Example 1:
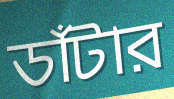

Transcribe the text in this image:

ডাঁটার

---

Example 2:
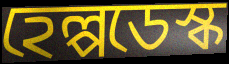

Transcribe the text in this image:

হেল্পডেস্ক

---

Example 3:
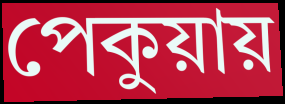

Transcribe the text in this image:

পেকুয়ায়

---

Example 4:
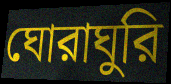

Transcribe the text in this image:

ঘোরাঘুরি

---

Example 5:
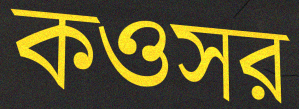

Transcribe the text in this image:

কওসর